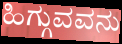
ಹಿಗ್ಗುವವನು